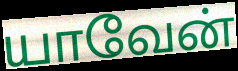
யாவேன்